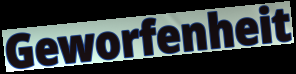
Geworfenheit